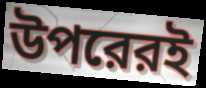
উপরেরই